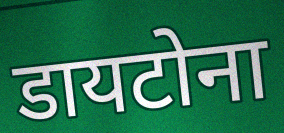
डायटोना